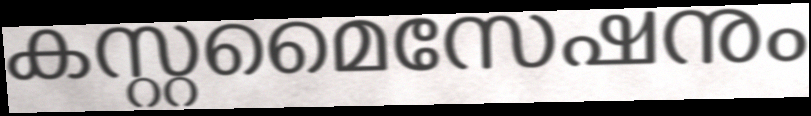
കസ്റ്റമൈസേഷനും